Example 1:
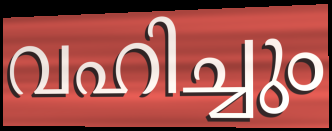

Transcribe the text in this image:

വഹിച്ചും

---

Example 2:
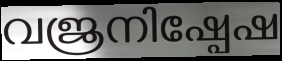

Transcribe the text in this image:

വജ്രനിഷ്പേഷ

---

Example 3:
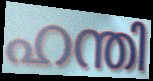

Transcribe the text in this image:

ഹന്തി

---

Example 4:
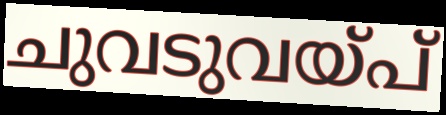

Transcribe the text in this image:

ചുവടുവയ്പ്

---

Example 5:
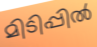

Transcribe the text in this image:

മിടിപ്പിൽ